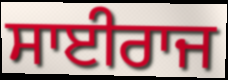
ਸਾਈਰਾਜ